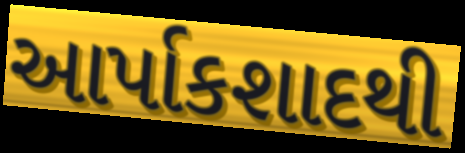
આર્પાકશાદથી